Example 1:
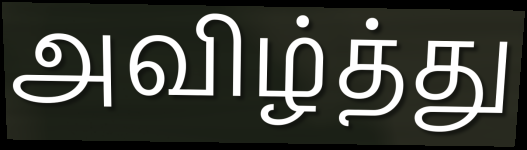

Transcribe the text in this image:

அவிழ்த்து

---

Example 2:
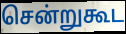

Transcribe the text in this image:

சென்றுகூட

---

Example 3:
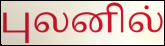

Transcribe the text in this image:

புலனில்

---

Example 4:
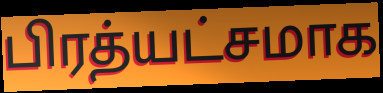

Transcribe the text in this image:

பிரத்யட்சமாக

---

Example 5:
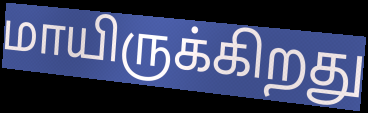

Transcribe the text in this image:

மாயிருக்கிறது